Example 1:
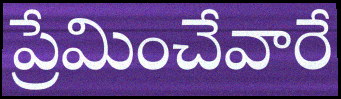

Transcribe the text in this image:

ప్రేమించేవారే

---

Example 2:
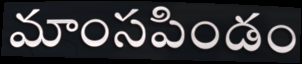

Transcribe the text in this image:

మాంసపిండం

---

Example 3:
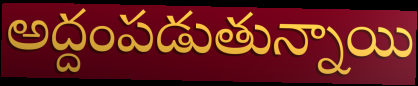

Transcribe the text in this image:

అద్దంపడుతున్నాయి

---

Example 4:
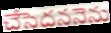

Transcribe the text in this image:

చేసెదననెను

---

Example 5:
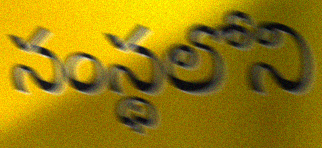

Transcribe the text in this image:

సంస్థలోని